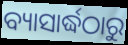
ବ୍ୟାସାର୍ଦ୍ଧଠାରୁ